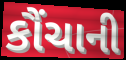
કૌંચાની